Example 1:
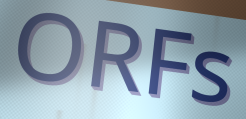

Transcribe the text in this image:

ORFs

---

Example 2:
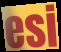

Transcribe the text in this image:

esi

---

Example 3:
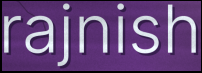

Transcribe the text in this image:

rajnish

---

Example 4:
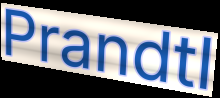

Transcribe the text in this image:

Prandtl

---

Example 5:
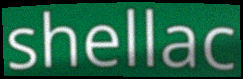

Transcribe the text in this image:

shellac